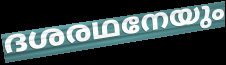
ദശരഥനേയും